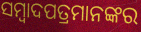
ସମ୍ୱାଦପତ୍ରମାନଙ୍କର